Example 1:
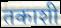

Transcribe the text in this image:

तकाशी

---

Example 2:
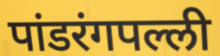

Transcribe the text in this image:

पांडरंगपल्ली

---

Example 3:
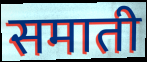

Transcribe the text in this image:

समाती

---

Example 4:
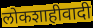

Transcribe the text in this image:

लोकशाहीवादी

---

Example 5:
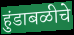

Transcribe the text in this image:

हुंडाबळीचे